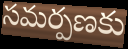
సమర్పణకు